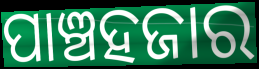
ପାଞ୍ଚହଜାର